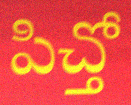
పిచ్తో